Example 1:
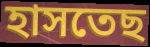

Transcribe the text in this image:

হাসতেছ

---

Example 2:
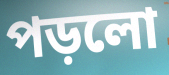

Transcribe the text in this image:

পড়লো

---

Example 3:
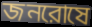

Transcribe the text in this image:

জনরোষে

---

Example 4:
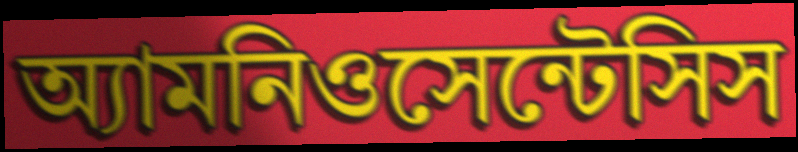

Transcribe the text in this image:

অ্যামনিওসেন্টেসিস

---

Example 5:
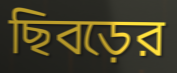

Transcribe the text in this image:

ছিবড়ের